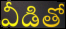
వీడితో